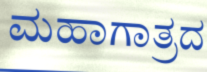
ಮಹಾಗಾತ್ರದ